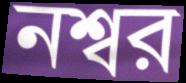
নশ্বর